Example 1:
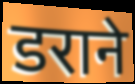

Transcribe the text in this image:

डराने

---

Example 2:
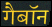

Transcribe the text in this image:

गैबॉन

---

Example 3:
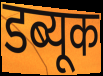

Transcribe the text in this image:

डब्यूक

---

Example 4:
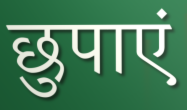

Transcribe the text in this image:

छुपाएं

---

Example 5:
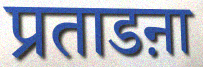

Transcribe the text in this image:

प्रताडऩा